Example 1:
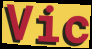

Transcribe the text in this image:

Vic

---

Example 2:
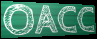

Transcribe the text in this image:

OACC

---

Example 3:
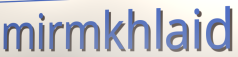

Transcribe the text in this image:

mirmkhlaid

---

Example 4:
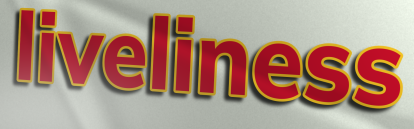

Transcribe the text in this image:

liveliness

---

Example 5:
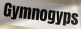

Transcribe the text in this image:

Gymnogyps